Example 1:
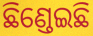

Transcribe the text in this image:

ଛିଣ୍ଡେଇଛି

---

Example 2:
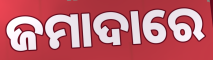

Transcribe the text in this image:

ଜମାଦାରେ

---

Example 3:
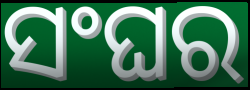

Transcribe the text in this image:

ସଂଘର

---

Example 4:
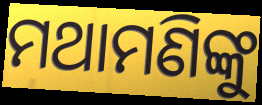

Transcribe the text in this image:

ମଥାମଣିଙ୍କୁ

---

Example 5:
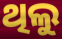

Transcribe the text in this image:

ଥିଲୁ